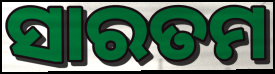
ସାରତମ